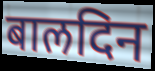
बालदिन